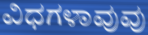
ವಿಧಗಳಾವುವು